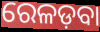
ରେଳଡ଼ବା